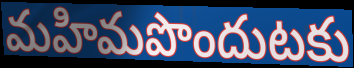
మహిమపొందుటకు